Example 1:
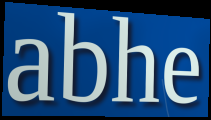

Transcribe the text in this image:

abhe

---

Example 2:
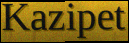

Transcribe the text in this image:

Kazipet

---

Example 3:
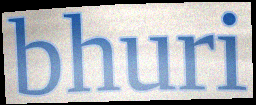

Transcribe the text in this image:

bhuri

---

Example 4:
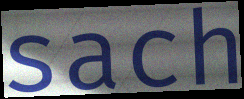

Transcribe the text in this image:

sach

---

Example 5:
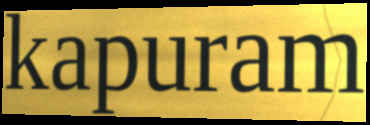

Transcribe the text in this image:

kapuram